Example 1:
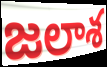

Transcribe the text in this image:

జలాశ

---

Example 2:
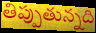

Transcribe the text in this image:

తిప్పుతున్నది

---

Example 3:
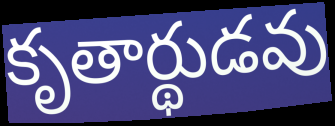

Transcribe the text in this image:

కృతార్థుడవు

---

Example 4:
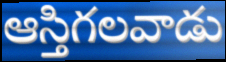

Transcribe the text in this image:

ఆస్తిగలవాడు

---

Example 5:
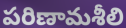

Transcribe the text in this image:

పరిణామశీలి